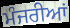
ਮੰਜਰੀਆਂ